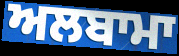
ਅਲਬਾਮਾ